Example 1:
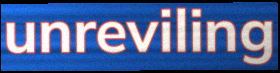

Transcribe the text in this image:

unreviling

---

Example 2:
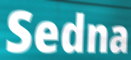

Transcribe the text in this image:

Sedna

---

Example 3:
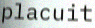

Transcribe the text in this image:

placuit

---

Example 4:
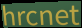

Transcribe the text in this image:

hrcnet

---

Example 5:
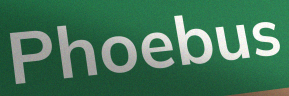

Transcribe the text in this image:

Phoebus